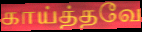
காய்த்தவே